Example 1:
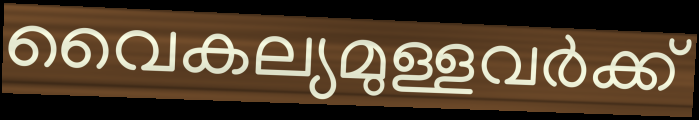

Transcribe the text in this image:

വൈകല്യമുള്ളവർക്ക്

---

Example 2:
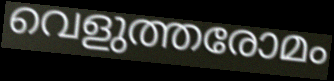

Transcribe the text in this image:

വെളുത്തരോമം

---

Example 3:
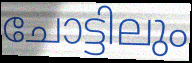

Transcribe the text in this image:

ചോട്ടിലും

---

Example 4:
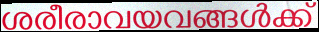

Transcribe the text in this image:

ശരീരാവയവങ്ങൾക്ക്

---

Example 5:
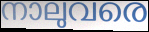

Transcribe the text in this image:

നാലുവരെ